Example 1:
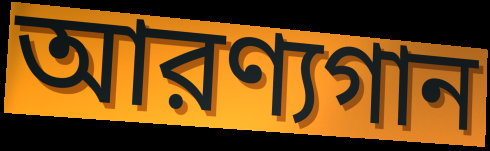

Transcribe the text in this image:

আরণ্যগান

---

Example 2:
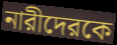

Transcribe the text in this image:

নারীদেরকে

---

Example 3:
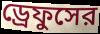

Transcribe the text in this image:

ড্রেফুসের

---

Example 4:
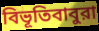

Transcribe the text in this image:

বিভূতিবাবুরা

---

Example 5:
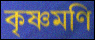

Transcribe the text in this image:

কৃষ্ণমণি